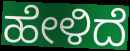
ಹೇಳಿದೆ